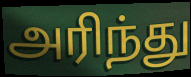
அரிந்து